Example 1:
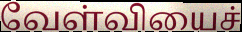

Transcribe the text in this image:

வேள்வியைச்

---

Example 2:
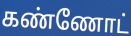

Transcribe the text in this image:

கண்ணோட்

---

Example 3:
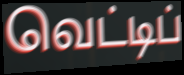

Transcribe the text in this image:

வெட்டிப்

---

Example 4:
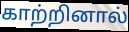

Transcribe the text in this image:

காற்றினால்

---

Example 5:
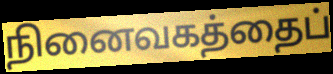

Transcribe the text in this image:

நினைவகத்தைப்